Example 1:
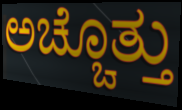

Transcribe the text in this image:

ಅಚ್ಚೊತ್ತು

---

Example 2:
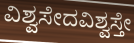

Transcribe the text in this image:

ವಿಶ್ವಸೇದವಿಶ್ವಸ್ತೇ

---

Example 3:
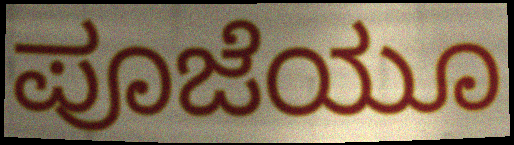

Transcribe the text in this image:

ಪೂಜೆಯೂ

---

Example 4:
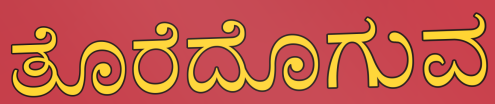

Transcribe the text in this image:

ತೊರೆದೊಗುವ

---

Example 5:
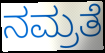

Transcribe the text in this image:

ನಮ್ರತೆ